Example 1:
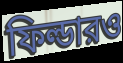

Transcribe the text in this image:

ফিল্ডারও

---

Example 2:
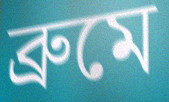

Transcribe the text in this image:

ব্রুমে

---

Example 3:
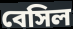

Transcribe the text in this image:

বেসিল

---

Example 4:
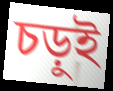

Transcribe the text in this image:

চড়ুই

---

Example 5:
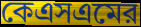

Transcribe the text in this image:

কেএসএমের